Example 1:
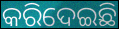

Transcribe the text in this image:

କରିଦେଇଛି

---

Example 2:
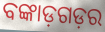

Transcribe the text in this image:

ବଙ୍କାଡ଼ଗଡ଼ର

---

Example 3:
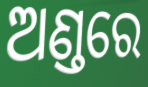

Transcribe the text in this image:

ଅଣ୍ଡରେ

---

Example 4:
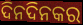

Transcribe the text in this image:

ଦିନଦିନକର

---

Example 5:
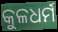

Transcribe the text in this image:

କୁଳଧର୍ମ